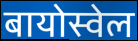
बायोस्वेल